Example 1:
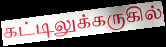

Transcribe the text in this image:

கட்டிலுக்கருகில்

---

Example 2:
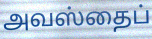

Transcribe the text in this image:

அவஸ்தைப்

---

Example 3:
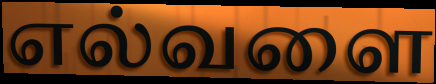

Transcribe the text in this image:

எல்வளை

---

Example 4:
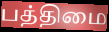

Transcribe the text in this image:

பத்திமை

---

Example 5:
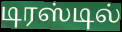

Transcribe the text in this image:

டிரஸ்டில்